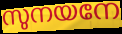
സുനയനേ